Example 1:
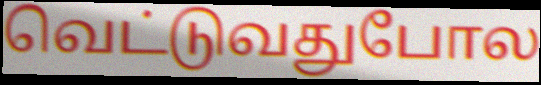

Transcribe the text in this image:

வெட்டுவதுபோல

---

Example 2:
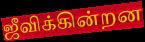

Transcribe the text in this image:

ஜீவிக்கின்றன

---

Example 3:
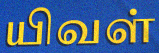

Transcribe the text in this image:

யிவள்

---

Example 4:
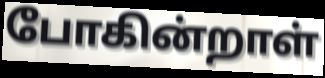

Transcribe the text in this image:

போகின்றாள்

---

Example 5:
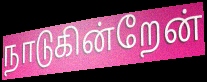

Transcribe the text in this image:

நாடுகின்றேன்